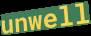
unwell